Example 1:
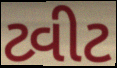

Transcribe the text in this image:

ટ્વીટ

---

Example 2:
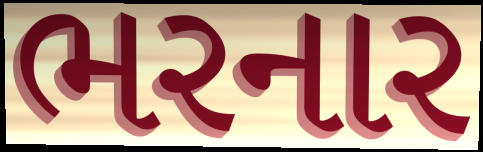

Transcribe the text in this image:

ભરનાર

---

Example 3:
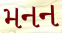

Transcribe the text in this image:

મનન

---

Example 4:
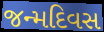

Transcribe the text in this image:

જન્મદિવસ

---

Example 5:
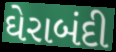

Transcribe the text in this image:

ઘેરાબંદી